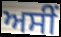
ਅਸੀੰ